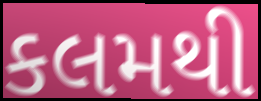
કલમથી